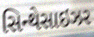
સિન્થેસાઇઝર